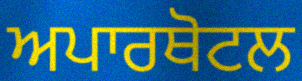
ਅਪਾਰਥੋਟਲ